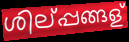
ശില്പ്പങ്ങള്